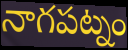
నాగపట్నం